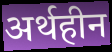
अर्थहीन